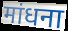
मांधना